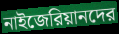
নাইজেরিয়ানদের